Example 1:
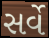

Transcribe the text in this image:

સર્વે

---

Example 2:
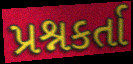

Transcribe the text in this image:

પ્રશ્નકર્તા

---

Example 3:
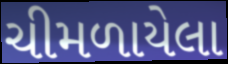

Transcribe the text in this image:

ચીમળાયેલા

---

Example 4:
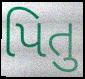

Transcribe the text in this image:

પિતુ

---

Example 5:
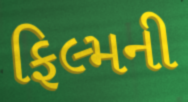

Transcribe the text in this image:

ફિલ્મની